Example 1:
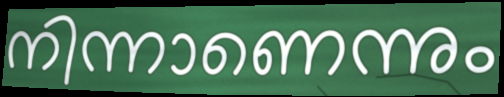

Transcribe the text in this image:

നിന്നാണെന്നും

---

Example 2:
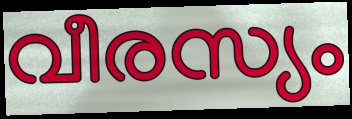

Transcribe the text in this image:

വീരസ്യം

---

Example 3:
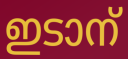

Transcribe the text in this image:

ഇടാന്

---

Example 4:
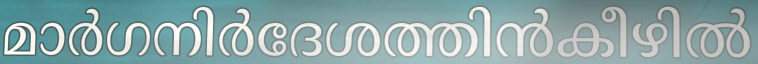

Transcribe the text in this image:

മാർഗനിർദേശത്തിൻകീഴിൽ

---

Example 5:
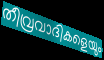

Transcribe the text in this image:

തീവ്രവാദികളെയും